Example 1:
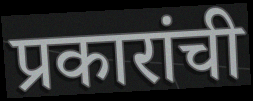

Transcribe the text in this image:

प्रकारांची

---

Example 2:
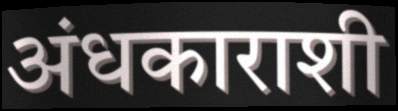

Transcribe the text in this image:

अंधकाराशी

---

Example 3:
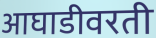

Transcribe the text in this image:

आघाडीवरती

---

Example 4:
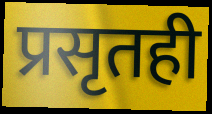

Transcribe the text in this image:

प्रसृतही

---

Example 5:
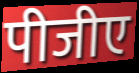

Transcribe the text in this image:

पीजीए